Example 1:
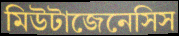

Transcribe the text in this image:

মিউটাজেনেসিস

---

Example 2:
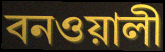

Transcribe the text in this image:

বনওয়ালী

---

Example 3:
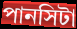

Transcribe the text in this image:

পানসিটা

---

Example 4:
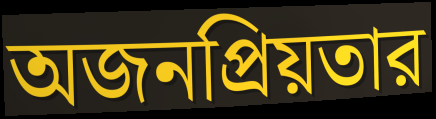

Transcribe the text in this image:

অজনপ্রিয়তার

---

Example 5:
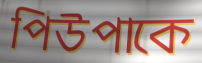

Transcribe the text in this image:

পিউপাকে